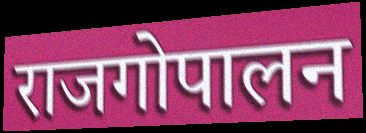
राजगोपालन